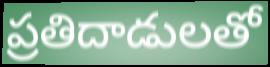
ప్రతిదాడులతో